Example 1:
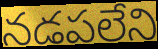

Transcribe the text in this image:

నడపలేని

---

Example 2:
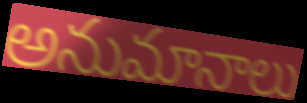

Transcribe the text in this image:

అనుమానాలు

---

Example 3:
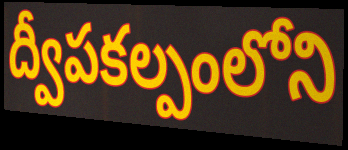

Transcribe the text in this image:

ద్వీపకల్పంలోని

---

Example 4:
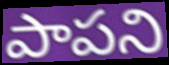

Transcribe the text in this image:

పాపని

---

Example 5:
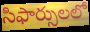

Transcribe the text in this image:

సిఫార్సులలో